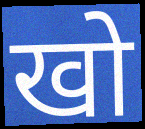
खो